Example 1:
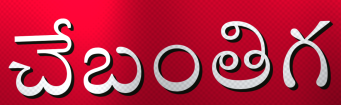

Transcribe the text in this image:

చేబంతిగ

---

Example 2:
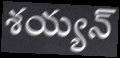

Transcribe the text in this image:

శయ్యన్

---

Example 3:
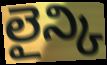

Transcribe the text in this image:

లైన్కి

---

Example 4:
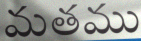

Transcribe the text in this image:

మతము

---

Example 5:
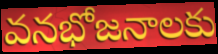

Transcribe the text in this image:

వనభోజనాలకు